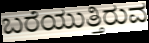
ಬರೆಯುತ್ತಿರುವ